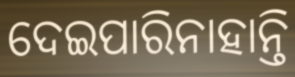
ଦେଇପାରିନାହାନ୍ତି